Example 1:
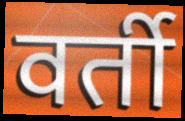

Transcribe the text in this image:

वर्ती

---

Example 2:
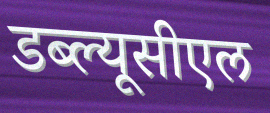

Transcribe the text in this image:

डब्ल्यूसीएल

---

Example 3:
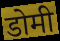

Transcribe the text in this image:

डोमी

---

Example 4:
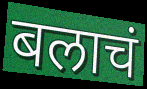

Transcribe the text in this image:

बलाचं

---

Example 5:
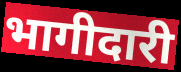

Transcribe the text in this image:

भागीदारी